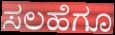
ಸಲಹೆಗೂ